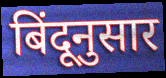
बिंदूनुसार